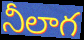
నీలాగ